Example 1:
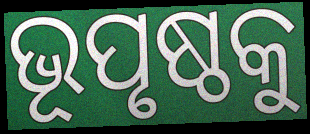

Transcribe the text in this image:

ଭୂପୃଷ୍ଠକୁ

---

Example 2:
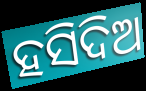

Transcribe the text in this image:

ହସିଦିଅ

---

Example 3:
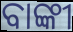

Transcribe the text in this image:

ବାଙ୍କୀ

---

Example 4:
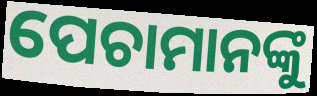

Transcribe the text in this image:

ପେଚାମାନଙ୍କୁ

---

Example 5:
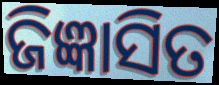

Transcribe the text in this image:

ଜିଜ୍ଞାସିତ